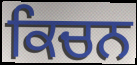
ਕਿਚਨ